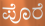
ಪೊರೆ